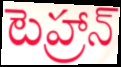
టెహ్రాన్